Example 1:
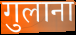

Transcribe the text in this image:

गुलाना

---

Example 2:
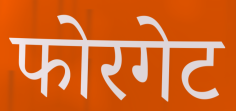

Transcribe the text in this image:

फोरगेट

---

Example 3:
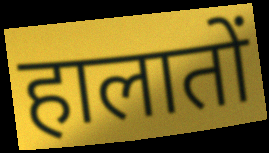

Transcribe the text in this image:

हालातों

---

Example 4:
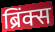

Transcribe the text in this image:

ब्रिंक्स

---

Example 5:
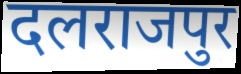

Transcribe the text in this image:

दलराजपुर